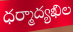
ధర్మాద్యఖిల